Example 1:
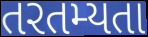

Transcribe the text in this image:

તરતમ્યતા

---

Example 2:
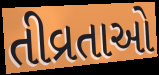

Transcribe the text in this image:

તીવ્રતાઓ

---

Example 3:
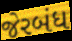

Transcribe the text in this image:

જેરબંધ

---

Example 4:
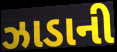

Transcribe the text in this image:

ઝાડાની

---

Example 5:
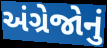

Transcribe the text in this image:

અંગ્રેજોનું